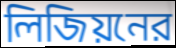
লিজিয়নের